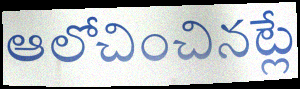
ఆలోచించినట్లే